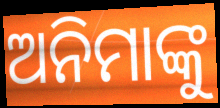
ଅନିମାଙ୍କୁ